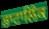
ਡਾਟਾਲਿੰਕ